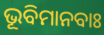
ଭୂବିମାନବାଃ